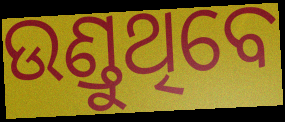
ଉଣ୍ଡୁଥିବେ